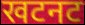
खटनट